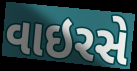
વાઇરસે